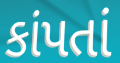
કાંપતાં